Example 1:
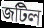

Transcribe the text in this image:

জটিল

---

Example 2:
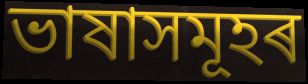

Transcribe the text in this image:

ভাষাসমূহৰ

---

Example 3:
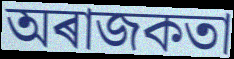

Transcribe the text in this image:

অৰাজকতা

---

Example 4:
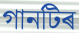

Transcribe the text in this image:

গানটিৰ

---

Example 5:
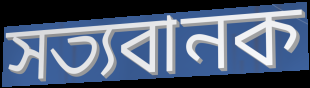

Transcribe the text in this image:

সত্যবানক